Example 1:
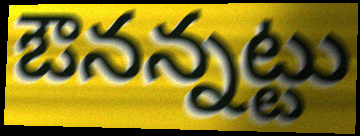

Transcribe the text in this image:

ఔనన్నట్టు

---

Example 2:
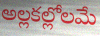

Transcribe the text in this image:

అల్లకల్లోలమే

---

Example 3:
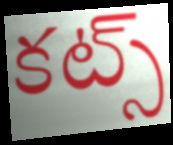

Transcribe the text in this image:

కట్స్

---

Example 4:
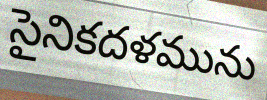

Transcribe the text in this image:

సైనికదళమును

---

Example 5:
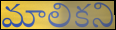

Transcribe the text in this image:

మాలికని